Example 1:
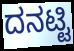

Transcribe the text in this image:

ದನಟ್ಟಿ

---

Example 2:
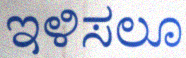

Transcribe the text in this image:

ಇಳಿಸಲೂ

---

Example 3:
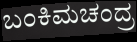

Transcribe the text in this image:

ಬಂಕಿಮಚಂದ್ರ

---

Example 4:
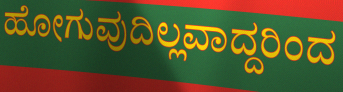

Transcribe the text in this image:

ಹೋಗುವುದಿಲ್ಲವಾದ್ದರಿಂದ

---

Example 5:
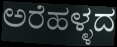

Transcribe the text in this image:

ಅರೆಹಳ್ಳದ